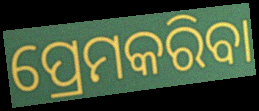
ପ୍ରେମକରିବା